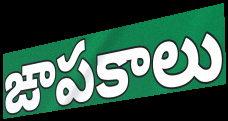
ఙాపకాలు